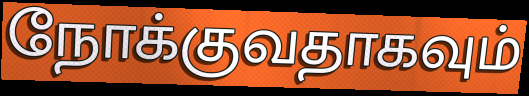
நோக்குவதாகவும்